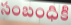
సంబంధికి